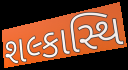
શલ્કાસ્થિ